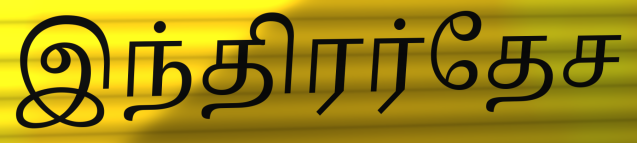
இந்திரர்தேச